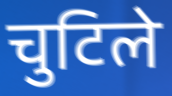
चुटिले